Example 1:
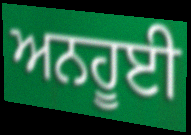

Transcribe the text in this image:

ਅਨਹੂਈ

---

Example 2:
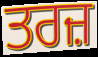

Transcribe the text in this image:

ਤਰਜ਼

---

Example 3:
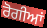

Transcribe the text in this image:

ਰੋਗੀਆਂ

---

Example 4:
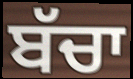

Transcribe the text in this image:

ਬੱਚਾ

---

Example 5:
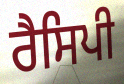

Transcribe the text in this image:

ਰੈਸਿਪੀ